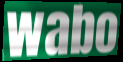
wabo